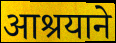
आश्रयाने